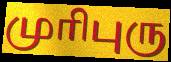
முரிபுரு